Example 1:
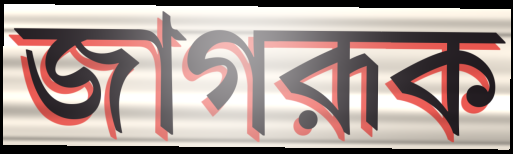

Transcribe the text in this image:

জাগরূক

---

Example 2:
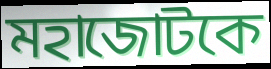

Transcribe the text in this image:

মহাজোটকে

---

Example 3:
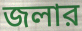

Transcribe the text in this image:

জলার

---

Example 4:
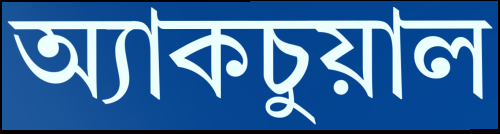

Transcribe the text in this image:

অ্যাকচুয়াল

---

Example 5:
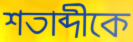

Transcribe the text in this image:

শতাব্দীকে